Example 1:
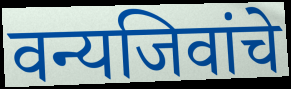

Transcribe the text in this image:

वन्यजिवांचे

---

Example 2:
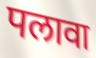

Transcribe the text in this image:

पलावा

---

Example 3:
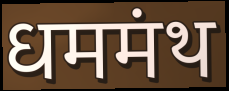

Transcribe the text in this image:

धममंथ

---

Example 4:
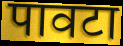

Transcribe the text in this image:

पावटा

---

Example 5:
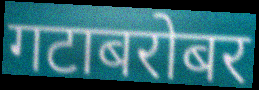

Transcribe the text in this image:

गटाबरोबर